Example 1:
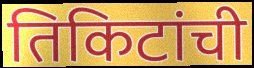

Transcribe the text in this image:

तिकिटांची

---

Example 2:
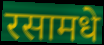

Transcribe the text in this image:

रसामधे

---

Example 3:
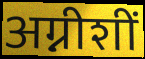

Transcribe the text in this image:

अग्नीशीं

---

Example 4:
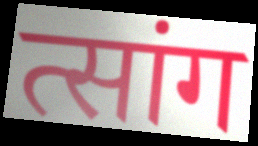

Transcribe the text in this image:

त्सांग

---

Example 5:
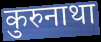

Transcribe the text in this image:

कुरुनाथा